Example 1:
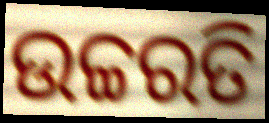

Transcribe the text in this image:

ଉଚ୍ଚରତି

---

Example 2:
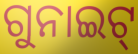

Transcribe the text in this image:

ଗୁନାଇଟ୍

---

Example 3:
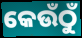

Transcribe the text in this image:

କେଉଁଠୁଁ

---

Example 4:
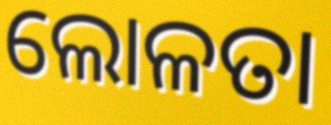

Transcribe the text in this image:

ଲୋଳତା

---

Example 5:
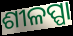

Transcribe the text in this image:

ଶୀଳପ୍ପା